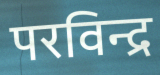
परविन्द्र